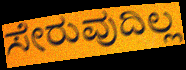
ಸೇರುವುದಿಲ್ಲ